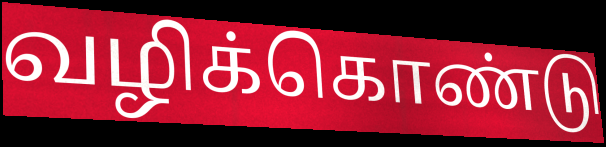
வழிக்கொண்டு